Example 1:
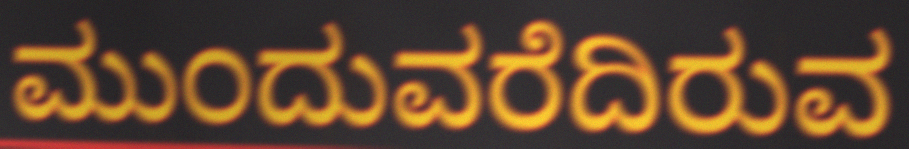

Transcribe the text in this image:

ಮುಂದುವರೆದಿರುವ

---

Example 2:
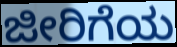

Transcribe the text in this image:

ಜೀರಿಗೆಯ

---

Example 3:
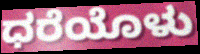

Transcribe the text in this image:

ಧರೆಯೊಳು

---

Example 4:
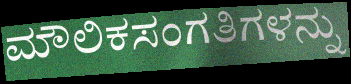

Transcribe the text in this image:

ಮೌಲಿಕಸಂಗತಿಗಳನ್ನು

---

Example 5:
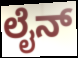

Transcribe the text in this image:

ಲೈನ್